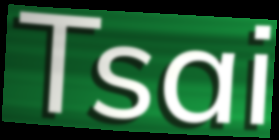
Tsai